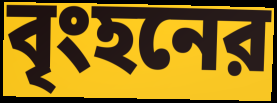
বৃংহনের